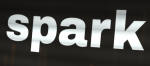
spark